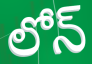
లోన్